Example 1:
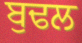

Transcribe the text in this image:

ਬੁਢਲ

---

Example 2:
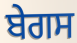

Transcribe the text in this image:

ਬੇਗਸ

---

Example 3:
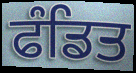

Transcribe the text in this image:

ਫੰਡਿਤ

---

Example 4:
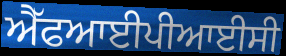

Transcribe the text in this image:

ਐੱਫਆਈਪੀਆਈਸੀ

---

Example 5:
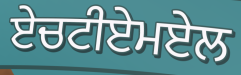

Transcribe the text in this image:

ਏਚਟੀਏਮਏਲ